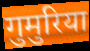
गुमुरिया